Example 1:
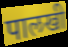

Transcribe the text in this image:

पालखी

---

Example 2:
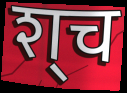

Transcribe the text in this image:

श्च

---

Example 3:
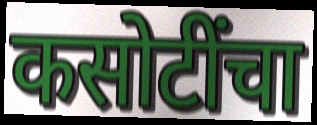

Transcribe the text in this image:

कसोटींचा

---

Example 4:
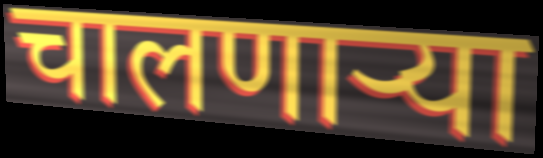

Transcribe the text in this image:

चालणाऱ्या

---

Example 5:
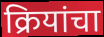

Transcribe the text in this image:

क्रियांचा